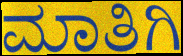
ಮಾತಿಗಿ